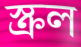
স্ক্রল